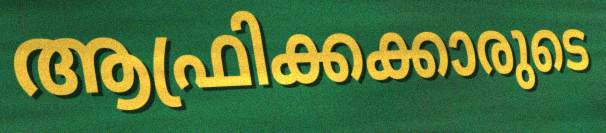
ആഫ്രിക്കക്കാരുടെ